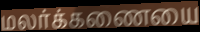
மலர்க்கணையை